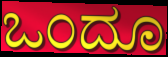
ಒಂದೂ